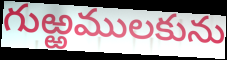
గుఱ్ఱములకును